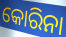
କୋରିନା